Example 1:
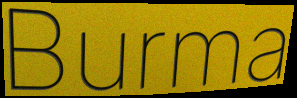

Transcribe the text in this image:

Burma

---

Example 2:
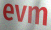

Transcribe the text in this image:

evm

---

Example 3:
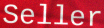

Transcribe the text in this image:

Seller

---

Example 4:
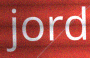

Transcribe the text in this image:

jord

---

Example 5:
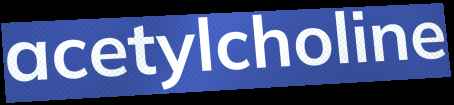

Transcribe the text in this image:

acetylcholine